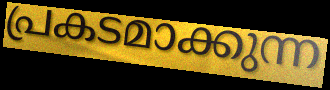
പ്രകടമാക്കുന്ന